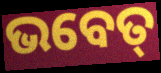
ଭବେତ୍